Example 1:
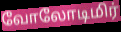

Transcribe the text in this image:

வோலோடிமிர்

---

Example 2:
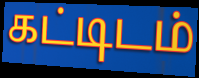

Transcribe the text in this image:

கட்டிடம்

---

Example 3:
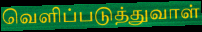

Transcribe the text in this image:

வெளிப்படுத்துவாள்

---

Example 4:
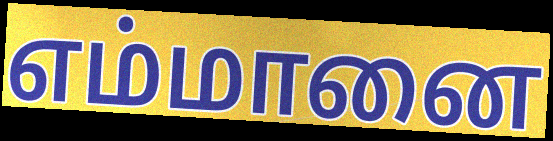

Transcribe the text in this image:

எம்மானை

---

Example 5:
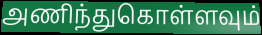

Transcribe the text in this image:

அணிந்துகொள்ளவும்